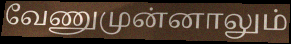
வேணுமுன்னாலும்